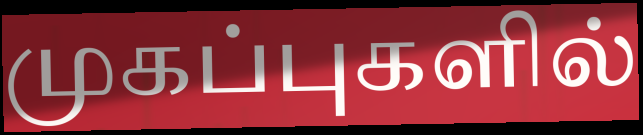
முகப்புகளில்